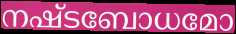
നഷ്ടബോധമോ